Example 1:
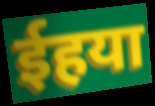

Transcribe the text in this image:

ईहया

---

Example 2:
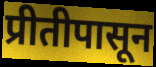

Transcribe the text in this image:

प्रीतीपासून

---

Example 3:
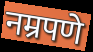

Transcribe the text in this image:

नम्रपणे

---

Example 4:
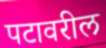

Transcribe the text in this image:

पटावरील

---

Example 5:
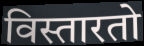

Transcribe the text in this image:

विस्तारतो